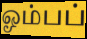
ஓம்பப்